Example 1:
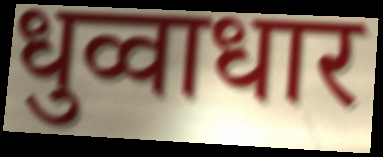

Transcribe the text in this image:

धुव्वाधार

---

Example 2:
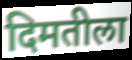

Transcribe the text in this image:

दिमतीला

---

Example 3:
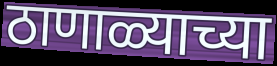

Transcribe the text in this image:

ठाणाळ्याच्या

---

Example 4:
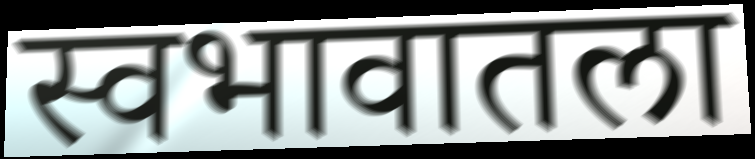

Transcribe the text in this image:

स्वभावातला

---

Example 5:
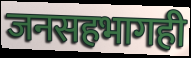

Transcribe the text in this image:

जनसहभागही